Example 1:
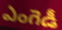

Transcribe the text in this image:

ఎంగెడీ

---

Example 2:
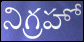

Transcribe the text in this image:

నిగ్రహో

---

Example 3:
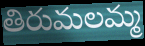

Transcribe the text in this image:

తిరుమలమ్మ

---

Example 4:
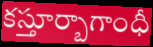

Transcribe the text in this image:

కస్తూర్బాగాంధీ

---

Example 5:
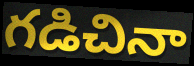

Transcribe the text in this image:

గడిచినా